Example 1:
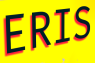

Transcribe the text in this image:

ERIS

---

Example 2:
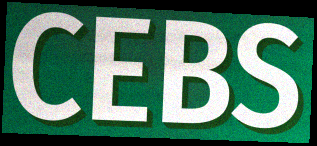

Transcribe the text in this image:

CEBS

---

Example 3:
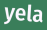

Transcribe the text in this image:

yela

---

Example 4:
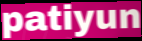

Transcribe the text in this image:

patiyun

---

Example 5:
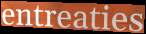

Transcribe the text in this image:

entreaties